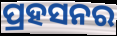
ପ୍ରହସନର